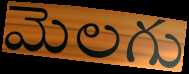
మెలగు